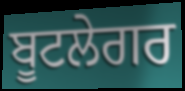
ਬੂਟਲੇਗਰ